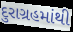
દુરાગ્રહમાંથી